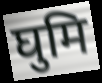
घुमि